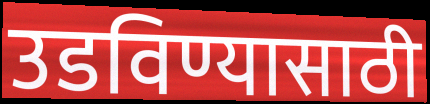
उडविण्यासाठी